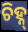
ଚିହ୍ନ୍